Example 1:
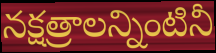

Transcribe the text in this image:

నక్షత్రాలన్నింటినీ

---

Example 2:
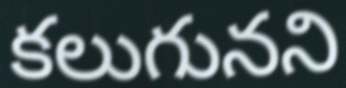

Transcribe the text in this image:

కలుగునని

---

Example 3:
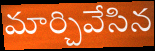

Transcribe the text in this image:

మార్చివేసిన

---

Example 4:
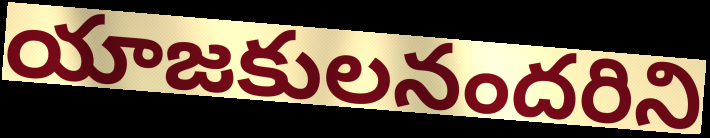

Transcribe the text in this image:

యాజకులనందరిని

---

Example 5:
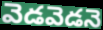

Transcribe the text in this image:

వెడవెడనె